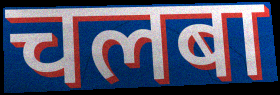
चलबा